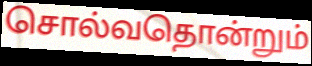
சொல்வதொன்றும்